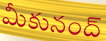
మీకునంద్